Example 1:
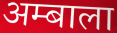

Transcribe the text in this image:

अम्बाला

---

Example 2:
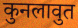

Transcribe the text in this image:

कुनलावुत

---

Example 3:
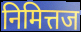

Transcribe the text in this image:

निमित्तज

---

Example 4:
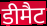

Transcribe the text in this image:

डीमैट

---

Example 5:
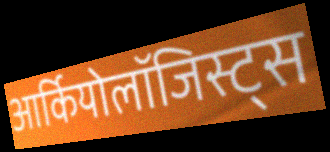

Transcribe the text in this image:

आर्कियोलॉजिस्ट्स